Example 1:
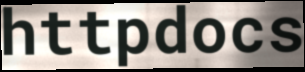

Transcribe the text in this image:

httpdocs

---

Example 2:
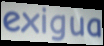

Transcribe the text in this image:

exigua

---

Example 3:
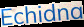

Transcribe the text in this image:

Echidna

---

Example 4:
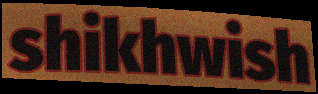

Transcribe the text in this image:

shikhwish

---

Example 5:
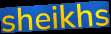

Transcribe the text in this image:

sheikhs